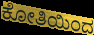
ಕೋತಿಯಿಂದ